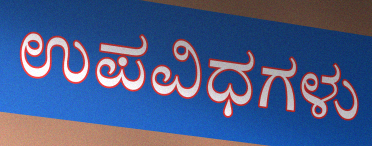
ಉಪವಿಧಗಳು